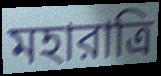
মহারাত্রি